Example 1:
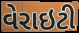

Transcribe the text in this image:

વેરાઇટી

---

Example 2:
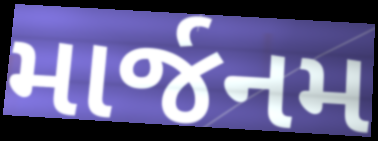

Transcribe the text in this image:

માર્જનમ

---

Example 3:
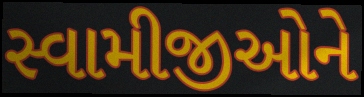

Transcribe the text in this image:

સ્વામીજીઓને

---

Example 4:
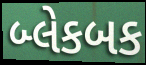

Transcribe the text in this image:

બ્લેકબક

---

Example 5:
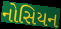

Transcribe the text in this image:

નોસિયન